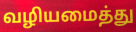
வழியமைத்து